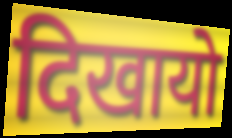
दिखायो